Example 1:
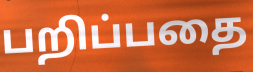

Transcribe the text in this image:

பறிப்பதை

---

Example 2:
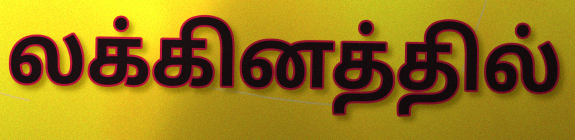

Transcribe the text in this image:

லக்கினத்தில்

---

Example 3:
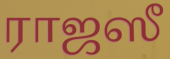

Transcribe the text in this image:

ராஜஸீ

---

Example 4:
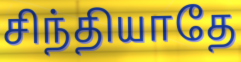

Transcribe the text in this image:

சிந்தியாதே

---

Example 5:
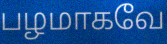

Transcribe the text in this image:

பழமாகவே